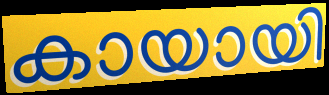
കായായി